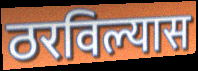
ठरविल्यास